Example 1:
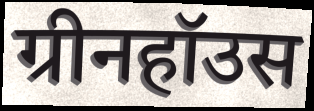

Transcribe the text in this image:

ग्रीनहॉउस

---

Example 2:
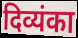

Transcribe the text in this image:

दिव्यंका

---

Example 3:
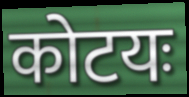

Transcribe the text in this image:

कोटयः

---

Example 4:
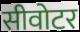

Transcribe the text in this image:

सीवोटर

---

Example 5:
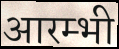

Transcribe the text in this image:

आरम्भी